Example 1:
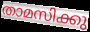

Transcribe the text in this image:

താമസിക്കു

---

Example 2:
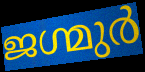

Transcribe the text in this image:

ജഗ്മുർ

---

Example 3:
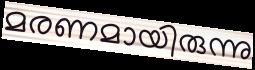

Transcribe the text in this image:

മരണമായിരുന്നു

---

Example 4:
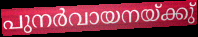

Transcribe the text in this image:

പുനർവായനയ്ക്കു്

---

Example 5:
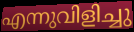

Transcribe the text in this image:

എന്നുവിളിച്ചു